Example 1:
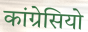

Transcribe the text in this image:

कांग्रेसियो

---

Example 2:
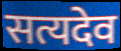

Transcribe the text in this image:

सत्यदेव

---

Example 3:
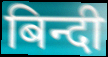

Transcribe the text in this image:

बिन्दी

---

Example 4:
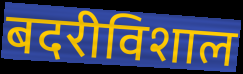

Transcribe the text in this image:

बदरीविशाल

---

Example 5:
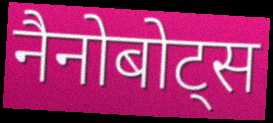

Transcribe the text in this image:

नैनोबोट्स